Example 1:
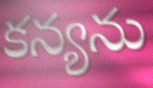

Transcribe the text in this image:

కన్యను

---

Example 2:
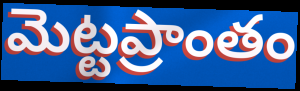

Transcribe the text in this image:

మెట్టప్రాంతం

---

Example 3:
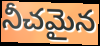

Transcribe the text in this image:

నీచమైన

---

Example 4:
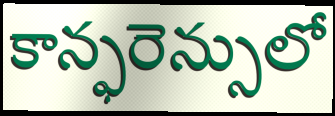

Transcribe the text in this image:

కాన్ఫరెన్సులో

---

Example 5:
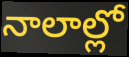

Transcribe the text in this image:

నాలాల్లో